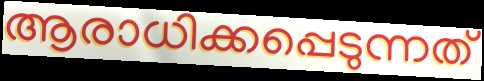
ആരാധിക്കപ്പെടുന്നത്